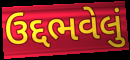
ઉદ્દભવેલું